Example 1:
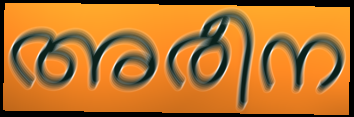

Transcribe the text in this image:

അരീന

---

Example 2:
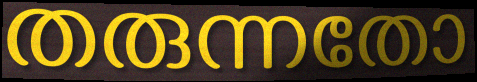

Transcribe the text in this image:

തരുന്നതോ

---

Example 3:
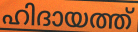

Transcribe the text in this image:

ഹിദായത്ത്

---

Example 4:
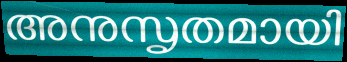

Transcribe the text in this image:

അനുസൃതമായി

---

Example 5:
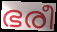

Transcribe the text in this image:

ഭരീ